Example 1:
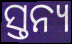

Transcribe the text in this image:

ସ୍ତନ୍ୟ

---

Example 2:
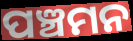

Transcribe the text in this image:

ପଞ୍ଚମନ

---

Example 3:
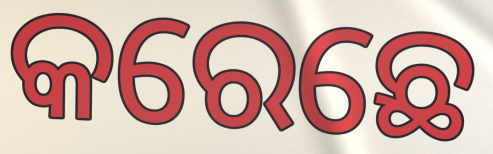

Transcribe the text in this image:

କରେଛେ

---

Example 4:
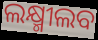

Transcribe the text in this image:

ଲକ୍ଷ୍ମୀଲବ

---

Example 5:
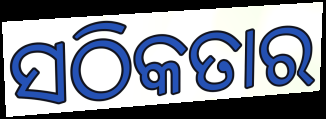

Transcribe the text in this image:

ସଠିକତାର